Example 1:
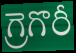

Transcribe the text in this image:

గ్రెగొరీ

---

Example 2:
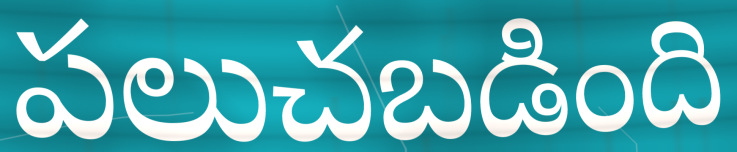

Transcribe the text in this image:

పలుచబడింది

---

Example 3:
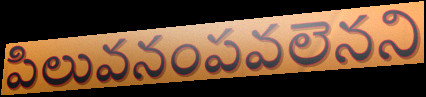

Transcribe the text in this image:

పిలువనంపవలెనని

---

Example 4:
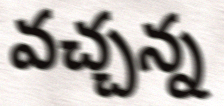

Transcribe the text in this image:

వచ్చన్న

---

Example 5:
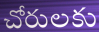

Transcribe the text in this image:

చోరులకు